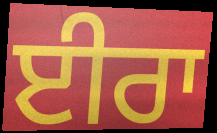
ਈਰਾ